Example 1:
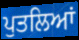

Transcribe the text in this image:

ਪੁਤਲਿਆਂ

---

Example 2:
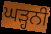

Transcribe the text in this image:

ਘੜ੍ਹਨੀ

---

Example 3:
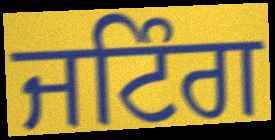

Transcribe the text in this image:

ਜਟਿੰਗ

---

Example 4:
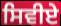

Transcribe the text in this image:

ਸਿਵੀਏ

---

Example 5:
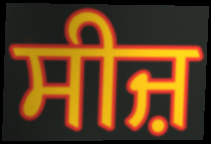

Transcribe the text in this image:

ਸੀਜ਼